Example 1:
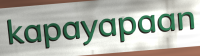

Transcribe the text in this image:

kapayapaan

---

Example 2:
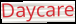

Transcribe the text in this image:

Daycare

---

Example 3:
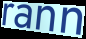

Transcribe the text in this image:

rann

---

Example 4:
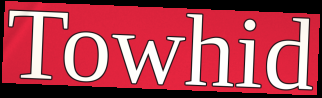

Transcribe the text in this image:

Towhid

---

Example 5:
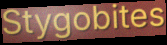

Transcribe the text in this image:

Stygobites